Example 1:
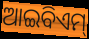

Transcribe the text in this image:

ଆଇବିଏମ୍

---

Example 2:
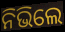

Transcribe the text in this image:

ନିଭିଲେ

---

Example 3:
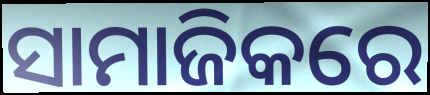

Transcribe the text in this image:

ସାମାଜିକରେ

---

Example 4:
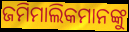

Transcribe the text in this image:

ଜମିମାଲିକମାନଙ୍କୁ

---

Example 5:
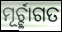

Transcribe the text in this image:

ମୂର୍ଚ୍ଛାଗତ